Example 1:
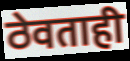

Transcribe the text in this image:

ठेवताही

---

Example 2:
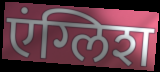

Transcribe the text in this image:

एंग्लिश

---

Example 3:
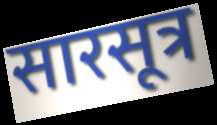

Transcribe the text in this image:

सारसूत्र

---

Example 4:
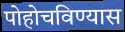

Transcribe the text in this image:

पोहोचविण्यास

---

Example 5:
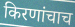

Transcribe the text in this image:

किरणांचाच